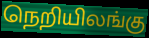
நெறியிலங்கு